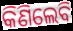
କିଣିଲେବି